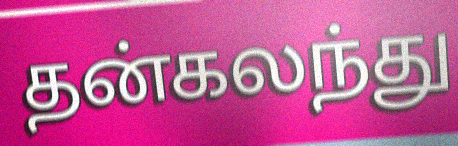
தன்கலந்து